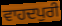
ਵਾਹਦਪੁਰੀ